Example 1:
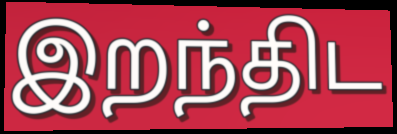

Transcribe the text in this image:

இறந்திட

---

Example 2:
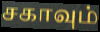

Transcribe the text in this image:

சகாவும்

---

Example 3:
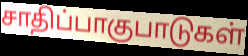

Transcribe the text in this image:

சாதிப்பாகுபாடுகள்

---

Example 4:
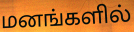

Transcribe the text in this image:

மனங்களில்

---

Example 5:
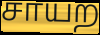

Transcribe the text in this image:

சாயற